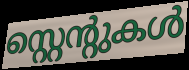
സ്റ്റെന്റുകൾ